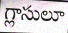
గ్లాసులూ